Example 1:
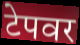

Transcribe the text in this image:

टेपवर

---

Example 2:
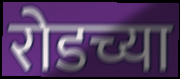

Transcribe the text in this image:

रोडच्या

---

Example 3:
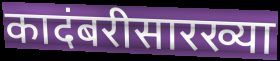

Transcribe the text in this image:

कादंबरीसारख्या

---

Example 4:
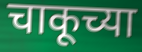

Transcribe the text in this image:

चाकूच्या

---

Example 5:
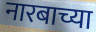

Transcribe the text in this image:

नारबाच्या